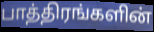
பாத்திரங்களின்